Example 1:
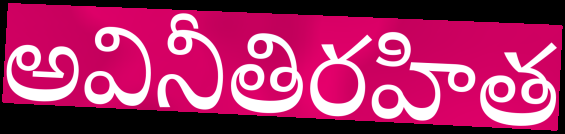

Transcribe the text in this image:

అవినీతిరహిత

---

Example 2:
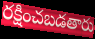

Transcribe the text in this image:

రక్షించబడతారు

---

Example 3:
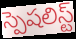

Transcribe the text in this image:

స్పెషలిస్ట్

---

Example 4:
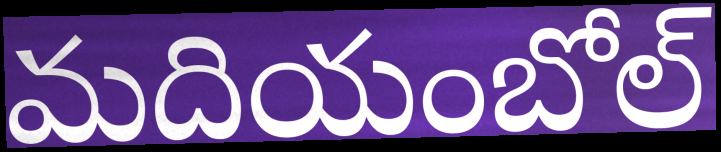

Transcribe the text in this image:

మదియంబోల్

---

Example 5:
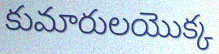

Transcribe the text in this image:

కుమారులయొక్క